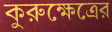
কুরুক্ষেত্রের